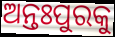
ଅନ୍ତଃପୁରକୁ